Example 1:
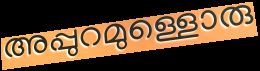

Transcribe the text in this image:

അപ്പുറമുള്ളൊരു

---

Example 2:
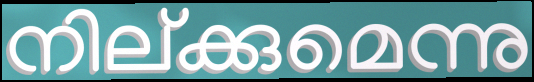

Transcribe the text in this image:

നില്ക്കുമെന്നു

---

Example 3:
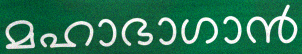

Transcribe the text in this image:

മഹാഭാഗാൻ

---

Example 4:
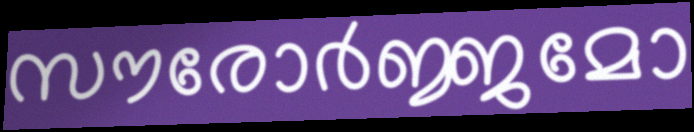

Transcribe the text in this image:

സൗരോർജ്ജമോ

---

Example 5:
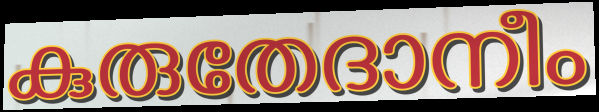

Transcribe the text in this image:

കുരുതേദാനീം